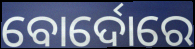
ବୋର୍ଦୋରେ